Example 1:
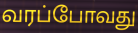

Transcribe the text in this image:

வரப்போவது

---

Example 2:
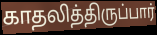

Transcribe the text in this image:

காதலித்திருப்பார்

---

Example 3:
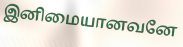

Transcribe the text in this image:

இனிமையானவனே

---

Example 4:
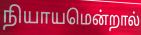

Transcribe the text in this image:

நியாயமென்றால்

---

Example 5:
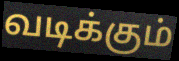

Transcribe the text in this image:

வடிக்கும்